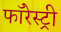
फॉरेस्ट्री